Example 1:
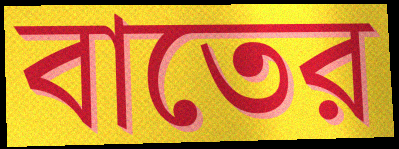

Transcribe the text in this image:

বাতের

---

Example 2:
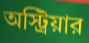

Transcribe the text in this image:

অস্ট্রিয়ার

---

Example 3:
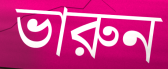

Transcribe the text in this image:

ভারুন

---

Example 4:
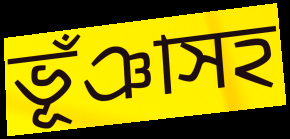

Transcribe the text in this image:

ভূঁঞাসহ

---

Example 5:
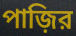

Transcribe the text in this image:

পাজ়ির